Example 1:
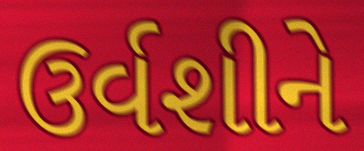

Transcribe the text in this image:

ઉર્વશીને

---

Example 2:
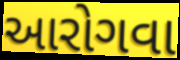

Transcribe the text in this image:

આરોગવા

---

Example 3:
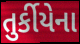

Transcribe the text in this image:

તુર્કીયેના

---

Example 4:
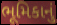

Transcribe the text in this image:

ભૂમિકાનું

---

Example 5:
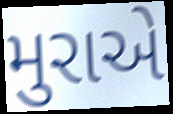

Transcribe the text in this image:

મુરાએ